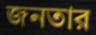
জনতার